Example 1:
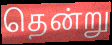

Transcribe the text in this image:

தென்று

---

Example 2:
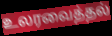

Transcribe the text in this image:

உலரவைத்தல்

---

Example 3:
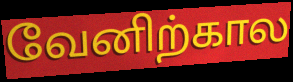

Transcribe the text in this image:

வேனிற்கால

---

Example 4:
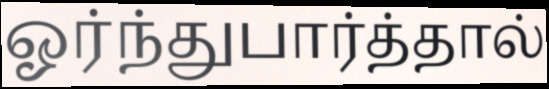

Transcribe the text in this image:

ஓர்ந்துபார்த்தால்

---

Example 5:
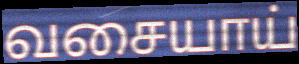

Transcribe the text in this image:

வசையாய்